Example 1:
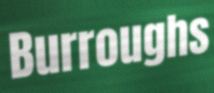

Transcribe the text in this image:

Burroughs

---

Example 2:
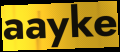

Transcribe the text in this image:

aayke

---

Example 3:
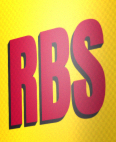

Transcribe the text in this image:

RBS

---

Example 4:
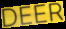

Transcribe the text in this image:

DEER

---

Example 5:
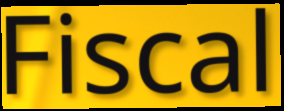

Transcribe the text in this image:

Fiscal